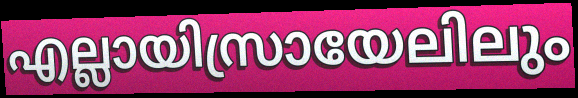
എല്ലായിസ്രായേലിലും